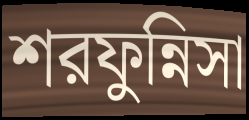
শরফুন্নিসা